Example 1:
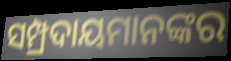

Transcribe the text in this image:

ସମ୍ପ୍ରଦାୟମାନଙ୍କର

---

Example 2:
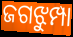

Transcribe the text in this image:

ଜଗଝୁମ୍ପା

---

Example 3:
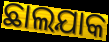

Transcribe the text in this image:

ଛାଲଯାକ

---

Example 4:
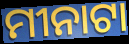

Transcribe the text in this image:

ମୀନାଟା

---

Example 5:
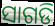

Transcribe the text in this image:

ସାଗଡି